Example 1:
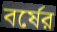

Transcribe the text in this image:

বর্ষের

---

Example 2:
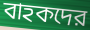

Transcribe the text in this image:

বাহকদের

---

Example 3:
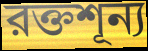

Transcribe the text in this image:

রক্তশূন্য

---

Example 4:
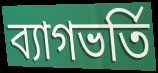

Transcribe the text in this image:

ব্যাগভর্তি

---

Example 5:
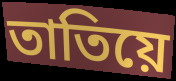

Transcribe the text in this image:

তাতিয়ে